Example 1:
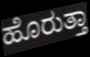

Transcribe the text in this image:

ಹೊರುತ್ತಾ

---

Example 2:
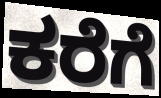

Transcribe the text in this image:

ಕರೆಗೆ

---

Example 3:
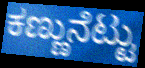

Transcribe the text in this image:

ಕಣ್ಣುನೆಟ್ಟು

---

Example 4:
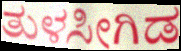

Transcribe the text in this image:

ತುಳಸೀಗಿಡ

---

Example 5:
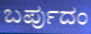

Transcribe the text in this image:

ಬರ್ಪುದಂ